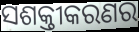
ସଶକ୍ତୀକରଣର